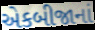
એકબીજાનાં